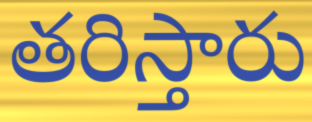
తరిస్తారు